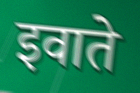
इवाते